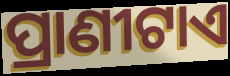
ପ୍ରାଣୀଟାଏ